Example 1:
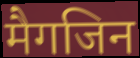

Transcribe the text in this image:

मैगजिन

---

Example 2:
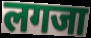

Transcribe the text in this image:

लगजा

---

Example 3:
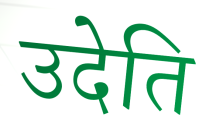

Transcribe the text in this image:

उदेति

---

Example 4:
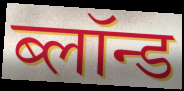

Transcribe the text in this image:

ब्लॉन्ड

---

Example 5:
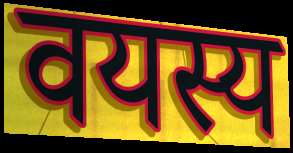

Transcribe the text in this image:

वयस्य